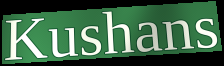
Kushans